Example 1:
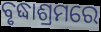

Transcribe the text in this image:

ବୃଦ୍ଧାଶ୍ରମରେ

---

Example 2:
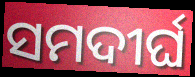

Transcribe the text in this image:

ସମଦୀର୍ଘ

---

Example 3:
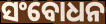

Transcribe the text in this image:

ସଂବୋଧନ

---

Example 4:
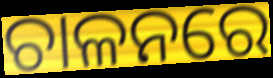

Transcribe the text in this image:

ଚାଳନରେ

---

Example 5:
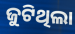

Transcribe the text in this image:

ଜୁଟିଥିଲା